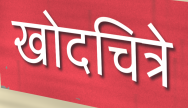
खोदचित्रे